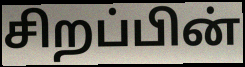
சிறப்பின்